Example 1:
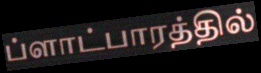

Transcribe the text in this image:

ப்ளாட்பாரத்தில்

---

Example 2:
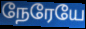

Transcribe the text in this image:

நேரேயே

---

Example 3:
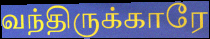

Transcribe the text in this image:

வந்திருக்காரே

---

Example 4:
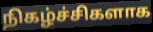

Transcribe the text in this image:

நிகழ்ச்சிகளாக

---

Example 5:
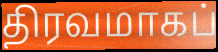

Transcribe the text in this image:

திரவமாகப்